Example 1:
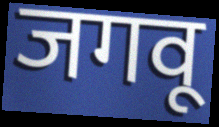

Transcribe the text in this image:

जगवू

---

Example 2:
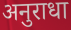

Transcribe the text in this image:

अनुराधा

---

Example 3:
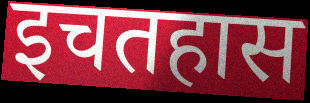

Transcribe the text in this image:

इचतहास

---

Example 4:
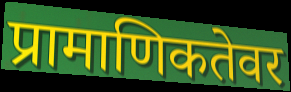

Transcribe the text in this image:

प्रामाणिकतेवर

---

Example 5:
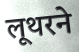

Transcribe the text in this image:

लूथरने